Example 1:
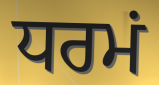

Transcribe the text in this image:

ਧਰਮਂ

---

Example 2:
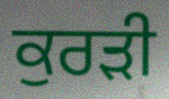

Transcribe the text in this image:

ਕੁਰੜੀ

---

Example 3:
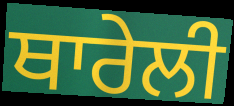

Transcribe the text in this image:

ਥਾਰੇਲੀ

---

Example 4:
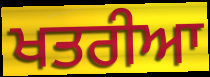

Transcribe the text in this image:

ਖਤਰੀਆ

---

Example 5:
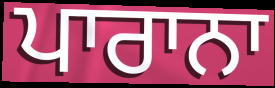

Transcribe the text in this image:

ਪਾਰਾਨਾ